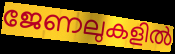
ജേണലുകളിൽ